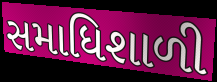
સમાધિશાળી